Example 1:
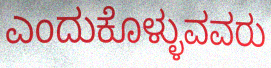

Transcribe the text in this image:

ಎಂದುಕೊಳ್ಳುವವರು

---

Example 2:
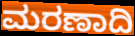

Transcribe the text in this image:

ಮರಣಾದಿ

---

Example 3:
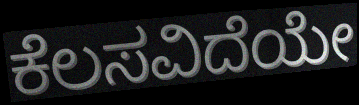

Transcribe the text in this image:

ಕೆಲಸವಿದೆಯೇ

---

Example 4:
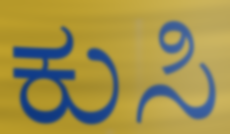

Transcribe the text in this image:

ಕುಸಿ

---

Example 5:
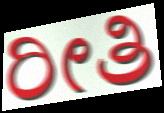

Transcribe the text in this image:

ರೀತಿ